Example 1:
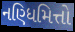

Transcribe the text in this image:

નણ્ધિમિત્તો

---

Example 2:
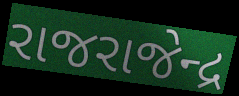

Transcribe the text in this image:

રાજરાજેન્દ્ર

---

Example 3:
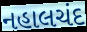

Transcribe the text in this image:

નહાલચંદ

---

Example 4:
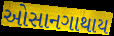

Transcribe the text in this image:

ઓસાનગાથાય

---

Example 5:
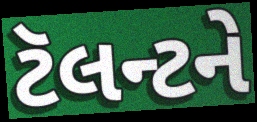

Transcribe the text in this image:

ટૅલન્ટને